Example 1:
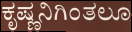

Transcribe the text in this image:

ಕೃಷ್ಣನಿಗಿಂತಲೂ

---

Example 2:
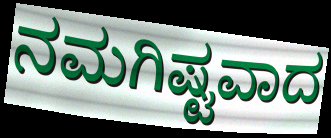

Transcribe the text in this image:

ನಮಗಿಷ್ಟವಾದ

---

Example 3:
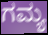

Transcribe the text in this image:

ಗಮ್ಯ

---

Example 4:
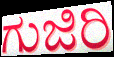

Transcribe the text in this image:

ಗುಜಿರಿ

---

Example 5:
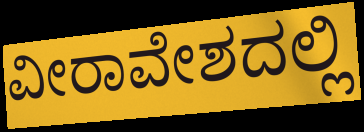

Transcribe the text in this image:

ವೀರಾವೇಶದಲ್ಲಿ